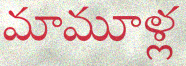
మామూళ్ల